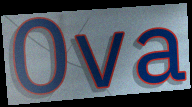
Ova